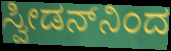
ಸ್ವೀಡನ್‌ನಿಂದ